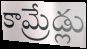
కామ్రేడ్లు